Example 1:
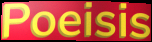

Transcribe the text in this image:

Poeisis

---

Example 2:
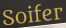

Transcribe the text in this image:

Soifer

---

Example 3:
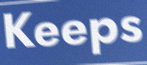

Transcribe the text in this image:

Keeps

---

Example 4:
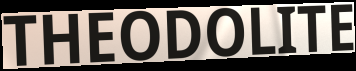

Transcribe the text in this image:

THEODOLITE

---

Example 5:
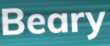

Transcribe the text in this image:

Beary